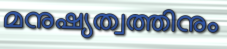
മനുഷ്യത്വത്തിനും